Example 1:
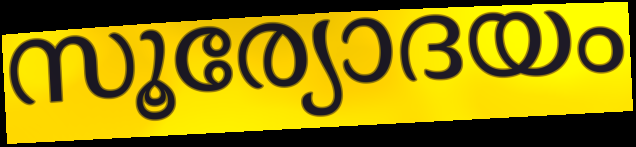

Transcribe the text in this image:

സൂര്യോദയം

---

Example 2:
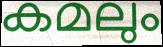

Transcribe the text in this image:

കമലും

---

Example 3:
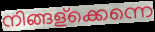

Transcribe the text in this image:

നിങ്ങള്ക്കെന്നെ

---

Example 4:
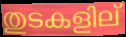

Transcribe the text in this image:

തുടകളില്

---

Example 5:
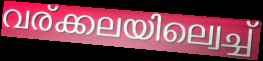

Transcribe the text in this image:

വര്ക്കലയില്വെച്ച്